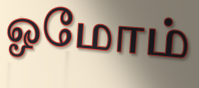
ஓமோம்